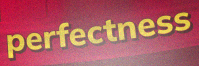
perfectness